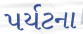
પર્યટના